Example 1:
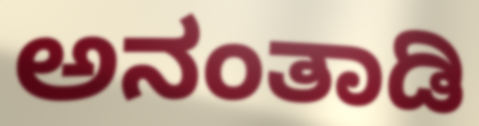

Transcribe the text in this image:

ಅನಂತಾಡಿ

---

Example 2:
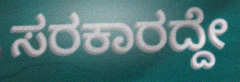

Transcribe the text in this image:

ಸರಕಾರದ್ದೇ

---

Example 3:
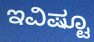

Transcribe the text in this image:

ಇವಿಷ್ಟೂ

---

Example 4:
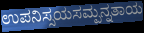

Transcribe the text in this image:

ಉಪನಿಸ್ಸಯಸಮ್ಪನ್ನತಾಯ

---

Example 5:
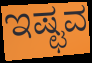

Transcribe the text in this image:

ಇಷ್ಟವ